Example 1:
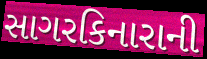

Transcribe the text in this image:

સાગરકિનારાની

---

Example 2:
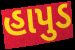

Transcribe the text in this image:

હાપુડ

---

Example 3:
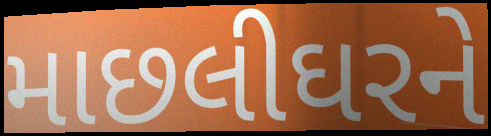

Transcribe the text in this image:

માછલીઘરને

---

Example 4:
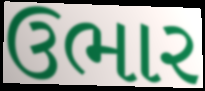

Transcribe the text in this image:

ઉભાર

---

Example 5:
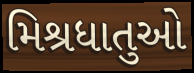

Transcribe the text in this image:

મિશ્રધાતુઓ